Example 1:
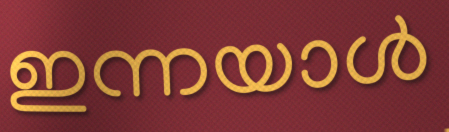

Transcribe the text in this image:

ഇന്നയാൾ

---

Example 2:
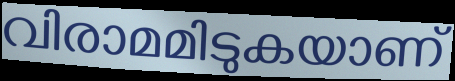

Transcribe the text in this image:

വിരാമമിടുകയാണ്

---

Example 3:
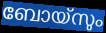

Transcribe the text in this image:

ബോയ്സും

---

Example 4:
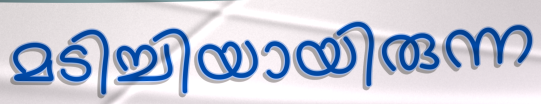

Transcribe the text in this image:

മടിച്ചിയായിരുന്ന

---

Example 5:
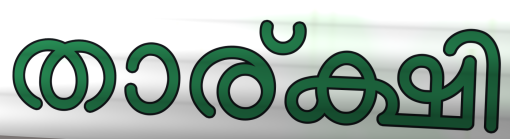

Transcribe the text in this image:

താര്ക്ഷി